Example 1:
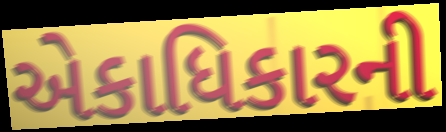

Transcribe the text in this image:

એકાધિકારની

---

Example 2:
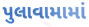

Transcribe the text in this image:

પુલાવામામાં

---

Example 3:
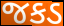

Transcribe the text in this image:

જકડ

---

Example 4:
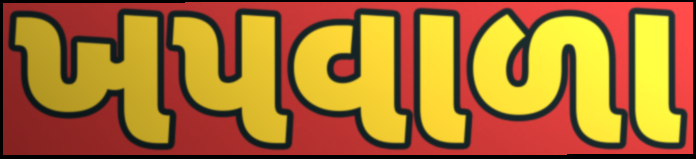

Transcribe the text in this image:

ખપવાળા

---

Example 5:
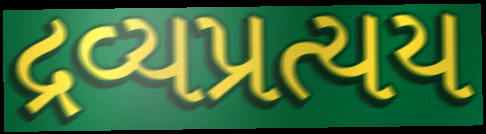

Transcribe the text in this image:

દ્રવ્યપ્રત્યય